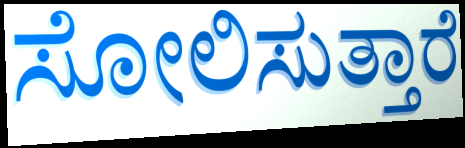
ಸೋಲಿಸುತ್ತಾರೆ